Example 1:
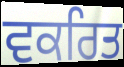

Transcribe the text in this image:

ਵਕਰਿਤ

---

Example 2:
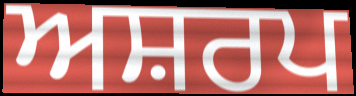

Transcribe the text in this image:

ਅਸ਼ਰਪ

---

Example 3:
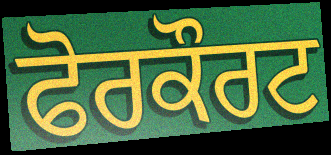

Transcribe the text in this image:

ਫੋਰਕੌਰਟ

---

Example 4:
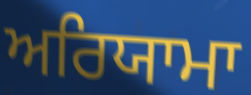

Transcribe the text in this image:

ਅਰਿਯਾਮਾ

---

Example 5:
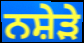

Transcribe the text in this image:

ਨਸ਼ੇੜੇ